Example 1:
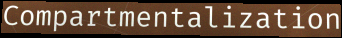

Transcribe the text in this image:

Compartmentalization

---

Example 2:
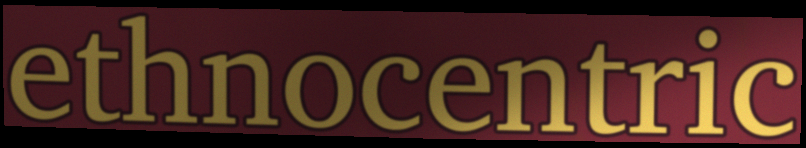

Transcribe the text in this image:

ethnocentric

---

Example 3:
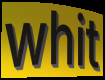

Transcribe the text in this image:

whit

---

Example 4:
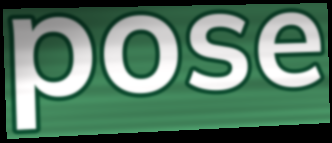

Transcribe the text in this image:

pose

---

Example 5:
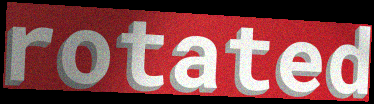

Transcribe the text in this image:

rotated